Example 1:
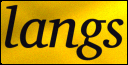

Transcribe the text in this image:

langs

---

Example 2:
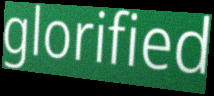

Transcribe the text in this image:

glorified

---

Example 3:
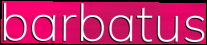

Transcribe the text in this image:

barbatus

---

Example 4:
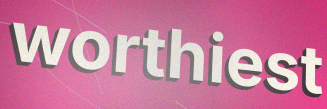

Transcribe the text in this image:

worthiest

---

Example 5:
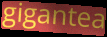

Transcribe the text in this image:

gigantea